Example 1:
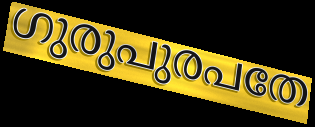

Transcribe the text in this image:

ഗുരുപുരപതേ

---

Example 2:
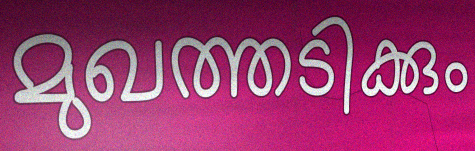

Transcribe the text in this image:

മുഖത്തടിക്കും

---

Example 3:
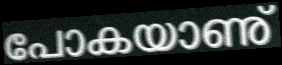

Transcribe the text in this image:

പോകയാണു്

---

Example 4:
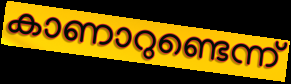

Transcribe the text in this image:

കാണാറുണ്ടെന്ന്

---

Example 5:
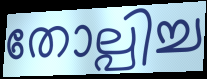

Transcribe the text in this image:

തോല്പിച്ച